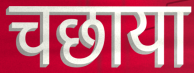
चछाया